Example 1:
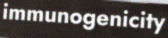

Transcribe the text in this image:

immunogenicity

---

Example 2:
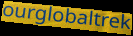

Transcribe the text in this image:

ourglobaltrek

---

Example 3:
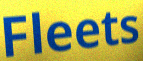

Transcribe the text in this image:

Fleets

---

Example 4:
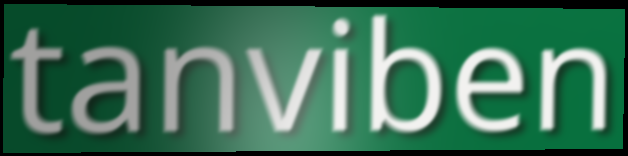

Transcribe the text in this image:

tanviben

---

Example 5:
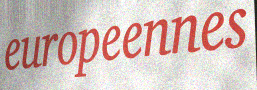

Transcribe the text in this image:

europeennes